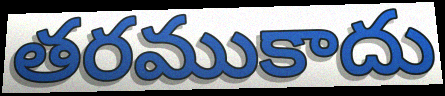
తరముకాదు